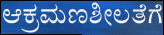
ಆಕ್ರಮಣಶೀಲತೆಗೆ